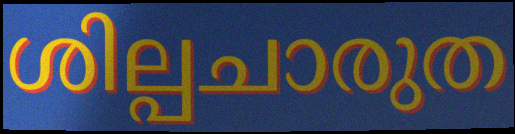
ശില്പചാരുത